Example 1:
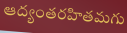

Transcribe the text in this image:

ఆద్యంతరహితమగు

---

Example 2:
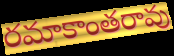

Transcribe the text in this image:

రమాకాంతరావు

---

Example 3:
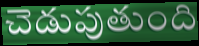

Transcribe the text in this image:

చెడుపుతుంది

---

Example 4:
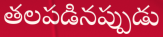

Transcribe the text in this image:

తలపడినప్పుడు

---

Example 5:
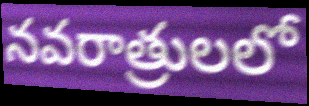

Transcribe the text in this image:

నవరాత్రులలో